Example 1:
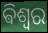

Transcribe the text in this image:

ଵିଶ୍ୱର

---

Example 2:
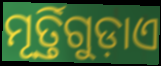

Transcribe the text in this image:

ମୂର୍ତ୍ତିଗୁଡ଼ାଏ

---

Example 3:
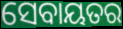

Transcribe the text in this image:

ସେବାୟତର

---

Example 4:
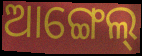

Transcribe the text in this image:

ଆଙ୍ଗେଲ୍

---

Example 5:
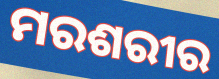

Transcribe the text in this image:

ମରଶରୀର